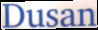
Dusan